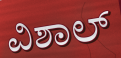
ವಿಶಾಲ್